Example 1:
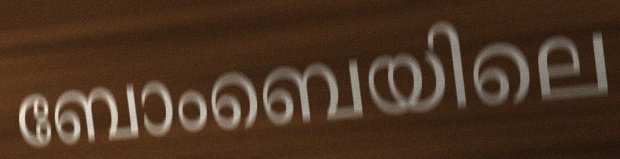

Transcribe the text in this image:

ബോംബെയിലെ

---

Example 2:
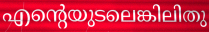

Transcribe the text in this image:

എന്റെയുടലെങ്കിലിതു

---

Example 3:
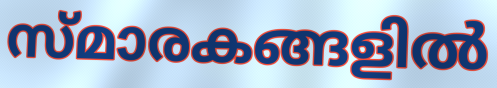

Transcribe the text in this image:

സ്മാരകങ്ങളിൽ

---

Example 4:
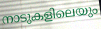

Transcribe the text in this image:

നാടുകളിലെയും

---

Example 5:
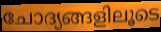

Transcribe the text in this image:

ചോദ്യങ്ങളിലൂടെ